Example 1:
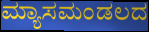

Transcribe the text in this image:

ಮ್ಯಾಸಮಂಡಲದ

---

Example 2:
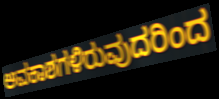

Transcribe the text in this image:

ಅವಕಾಶಗಳಿರುವುದರಿಂದ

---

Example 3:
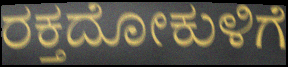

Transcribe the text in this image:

ರಕ್ತದೋಕುಳಿಗೆ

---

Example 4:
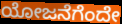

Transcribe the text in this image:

ಯೋಜನೆಗೆಂದೇ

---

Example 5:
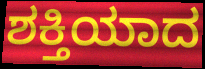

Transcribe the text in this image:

ಶಕ್ತಿಯಾದ